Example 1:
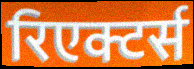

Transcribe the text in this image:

रिएक्टर्स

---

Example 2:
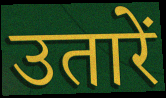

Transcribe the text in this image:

उतारें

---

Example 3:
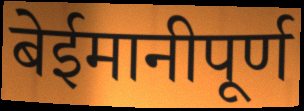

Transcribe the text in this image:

बेईमानीपूर्ण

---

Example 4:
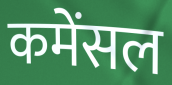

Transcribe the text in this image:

कमेंसल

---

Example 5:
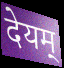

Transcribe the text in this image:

देयम्